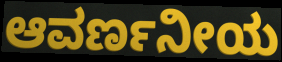
ಆವರ್ಣನೀಯ